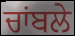
ਚਾਂਬਲੇ